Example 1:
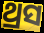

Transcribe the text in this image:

ଥ୍ରସ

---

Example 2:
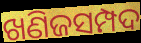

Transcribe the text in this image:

ଖଣିଜସମ୍ପଦ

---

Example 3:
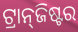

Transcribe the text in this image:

ଟ୍ରାନ୍‍ଜିଷ୍ଟର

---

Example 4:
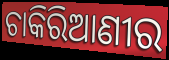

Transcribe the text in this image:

ଚାକିରିଆଣୀର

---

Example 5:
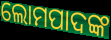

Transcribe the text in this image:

ଲୋମପାଦଙ୍କ